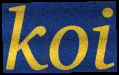
koi